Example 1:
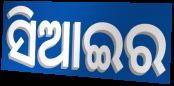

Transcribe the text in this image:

ସିଆଇର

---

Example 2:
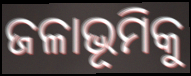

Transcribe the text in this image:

ଜଳାଭୂମିକୁ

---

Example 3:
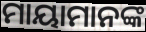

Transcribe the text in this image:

ମାୟାମାନଙ୍କ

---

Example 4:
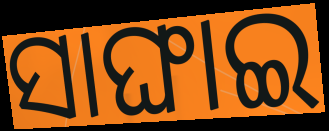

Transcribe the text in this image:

ସାଙ୍ଘାଇ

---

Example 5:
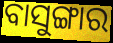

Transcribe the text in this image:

ବାସୁଙ୍ଗାର